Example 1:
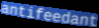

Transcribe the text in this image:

antifeedant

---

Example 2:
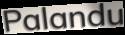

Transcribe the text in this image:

Palandu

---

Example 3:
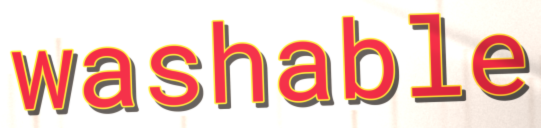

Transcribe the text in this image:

washable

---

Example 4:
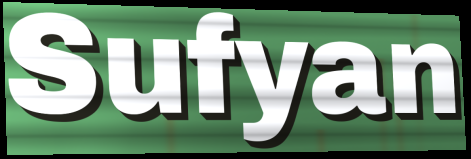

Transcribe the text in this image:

Sufyan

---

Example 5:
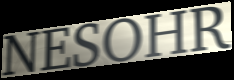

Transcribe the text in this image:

NESOHR